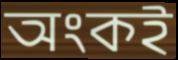
অংকই